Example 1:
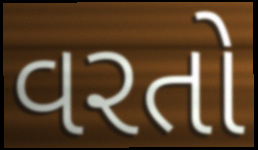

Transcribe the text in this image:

વરતો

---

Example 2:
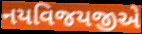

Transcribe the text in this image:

નયવિજયજીએ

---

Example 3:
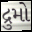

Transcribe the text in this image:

દ્રુમો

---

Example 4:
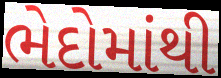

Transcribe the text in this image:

ભેદોમાંથી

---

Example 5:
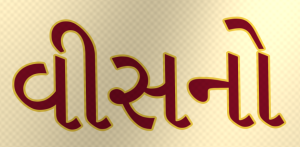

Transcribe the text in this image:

વીસનો